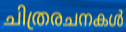
ചിത്രരചനകൾ